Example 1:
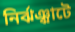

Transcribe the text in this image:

নির্ঝঞ্ঝাটে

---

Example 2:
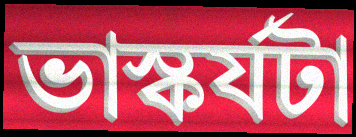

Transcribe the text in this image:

ভাস্কর্যটা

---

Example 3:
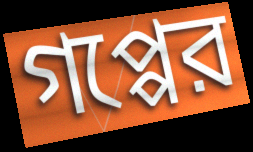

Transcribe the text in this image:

গপ্পের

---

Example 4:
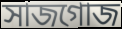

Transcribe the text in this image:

সাজগোজ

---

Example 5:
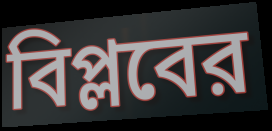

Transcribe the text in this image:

বিপ্লবের